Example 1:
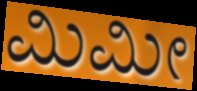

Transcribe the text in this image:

ಮಿಮೀ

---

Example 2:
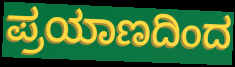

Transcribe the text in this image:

ಪ್ರಯಾಣದಿಂದ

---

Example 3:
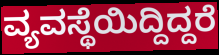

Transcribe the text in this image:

ವ್ಯವಸ್ಥೆಯಿದ್ದಿದ್ದರೆ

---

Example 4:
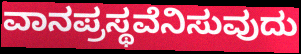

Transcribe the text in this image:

ವಾನಪ್ರಸ್ಥವೆನಿಸುವುದು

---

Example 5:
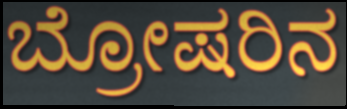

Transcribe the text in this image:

ಬ್ರೋಷರಿನ